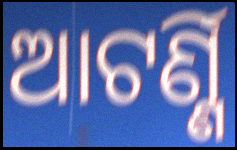
ଆଟର୍ଣ୍ଣି